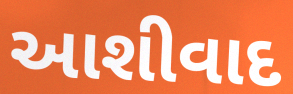
આશીવાદ